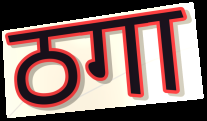
ठगा